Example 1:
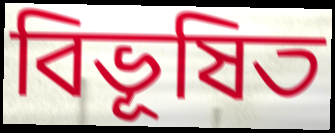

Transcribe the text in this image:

বিভূষিত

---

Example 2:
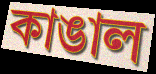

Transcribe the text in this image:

কাঙাল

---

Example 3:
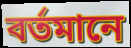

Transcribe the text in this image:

বর্তমানে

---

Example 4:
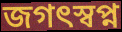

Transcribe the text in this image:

জগৎস্বপ্ন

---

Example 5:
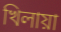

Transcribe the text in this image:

খিলায়া